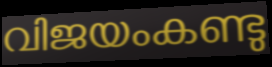
വിജയംകണ്ടു